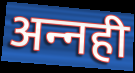
अन्नही